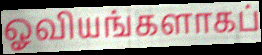
ஓவியங்களாகப்